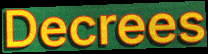
Decrees